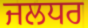
ਜਲਧਰ